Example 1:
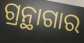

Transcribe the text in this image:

ଗ୍ରନ୍ଥାଗାର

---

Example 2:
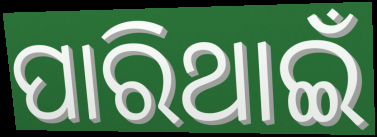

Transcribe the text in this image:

ପାରିଥାଇଁ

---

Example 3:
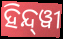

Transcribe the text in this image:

ହିନ୍ଦ୍‍ୱୀ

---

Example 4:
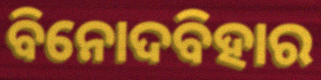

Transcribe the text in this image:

ବିନୋଦବିହାର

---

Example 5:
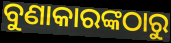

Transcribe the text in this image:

ବୁଣାକାରଙ୍କଠାରୁ